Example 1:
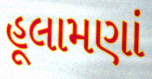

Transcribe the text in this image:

હૂલામણાં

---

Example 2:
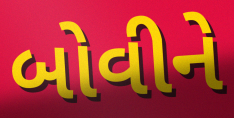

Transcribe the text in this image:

બોવીને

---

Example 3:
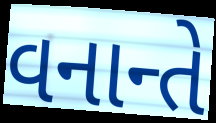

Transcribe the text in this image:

વનાન્તે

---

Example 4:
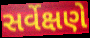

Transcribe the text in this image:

સર્વેક્ષણે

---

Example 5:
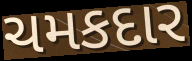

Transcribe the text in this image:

ચમકદાર